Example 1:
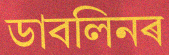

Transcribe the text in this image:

ডাবলিনৰ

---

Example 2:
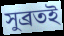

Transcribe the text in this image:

সুব্ৰতই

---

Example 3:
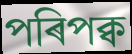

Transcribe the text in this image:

পৰিপক্ব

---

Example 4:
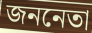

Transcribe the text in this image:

জননেতা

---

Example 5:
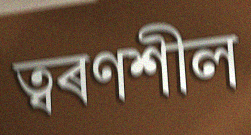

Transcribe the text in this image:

ত্বৰণশীল